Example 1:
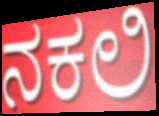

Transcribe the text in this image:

ನಕಲಿ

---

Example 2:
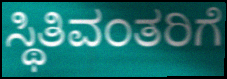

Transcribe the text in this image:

ಸ್ಥಿತಿವಂತರಿಗೆ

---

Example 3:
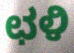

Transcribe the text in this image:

ಛಳಿ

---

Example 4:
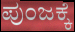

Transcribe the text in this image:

ಪುಂಜಕ್ಕೆ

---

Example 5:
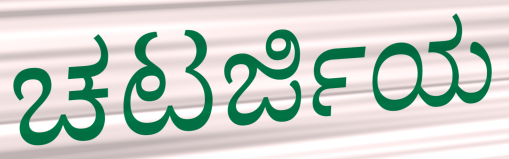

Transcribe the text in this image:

ಚಟರ್ಜಿಯ